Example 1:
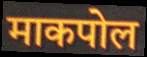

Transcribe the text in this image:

माकपोल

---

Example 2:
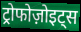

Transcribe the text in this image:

ट्रोफोज़ोइट्स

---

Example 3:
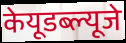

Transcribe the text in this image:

केयूडब्ल्यूजे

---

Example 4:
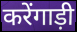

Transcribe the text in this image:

करेंगाड़ी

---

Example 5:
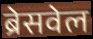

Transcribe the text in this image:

ब्रेसवेल